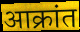
आक्रांत